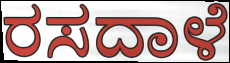
ರಸದಾಳೆ